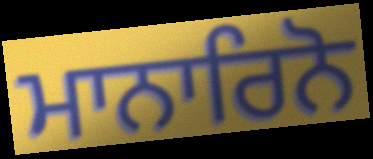
ਮਾਨਾਰਿਨੋ